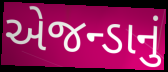
એજન્ડાનું